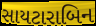
સાયટારાબિન